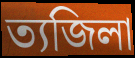
ত্যজিলা